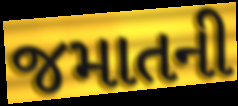
જમાતની